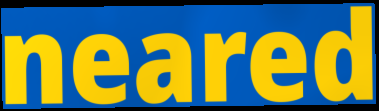
neared